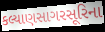
કલ્યાણસાગરસૂરિના